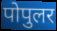
पोपुलर